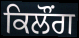
ਕਿਲੌਂਗ